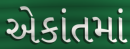
એકાંતમાં